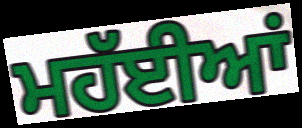
ਮਹੱਈਆਂ